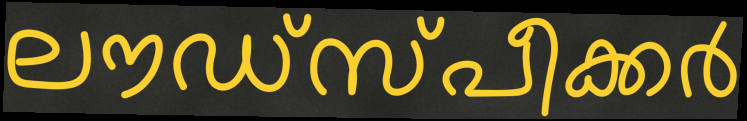
ലൗഡ്സ്പീക്കർ